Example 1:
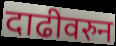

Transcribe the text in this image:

दाढीवरुन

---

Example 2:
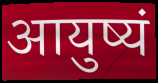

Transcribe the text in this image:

आयुष्यं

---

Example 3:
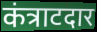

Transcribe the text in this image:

कंत्राटदार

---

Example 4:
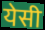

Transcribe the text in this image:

येसी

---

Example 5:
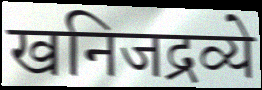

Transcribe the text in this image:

खनिजद्रव्ये